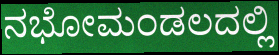
ನಭೋಮಂಡಲದಲ್ಲಿ